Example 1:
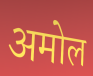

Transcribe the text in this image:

अमोल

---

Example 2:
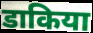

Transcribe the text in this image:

डाकिया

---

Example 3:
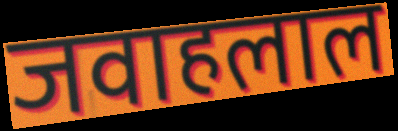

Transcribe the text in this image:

जवाहलाल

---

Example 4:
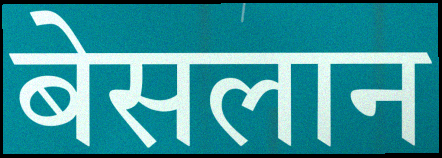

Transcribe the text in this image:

बेसलान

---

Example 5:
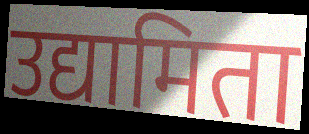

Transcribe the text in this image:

उद्यामिता